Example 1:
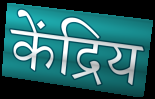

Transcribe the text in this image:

केंद्रिय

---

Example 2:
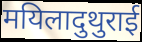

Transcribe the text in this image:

मयिलादुथुराई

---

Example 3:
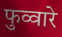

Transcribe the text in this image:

फुव्वारे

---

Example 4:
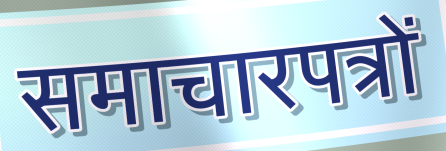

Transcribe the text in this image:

समाचारपत्रों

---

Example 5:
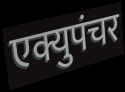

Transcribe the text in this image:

एक्युपंचर